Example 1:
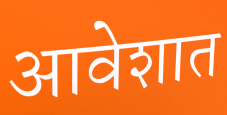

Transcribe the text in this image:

आवेशात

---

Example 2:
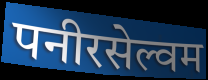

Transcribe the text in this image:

पनीरसेल्वम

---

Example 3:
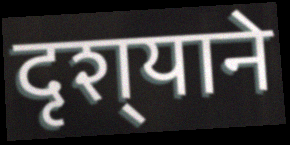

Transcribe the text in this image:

दृश्याने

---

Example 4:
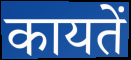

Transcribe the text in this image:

कायतें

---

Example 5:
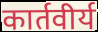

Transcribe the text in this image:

कार्तवीर्य